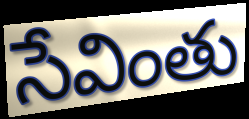
సేవింతు